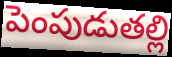
పెంపుడుతల్లి